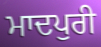
ਮਾਦਪੁਰੀ